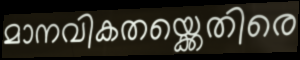
മാനവികതയ്ക്കെതിരെ